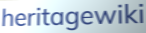
heritagewiki